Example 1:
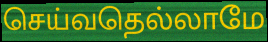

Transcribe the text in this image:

செய்வதெல்லாமே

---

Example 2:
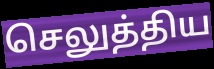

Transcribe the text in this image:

செலுத்திய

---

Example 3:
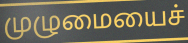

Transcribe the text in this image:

முழுமையைச்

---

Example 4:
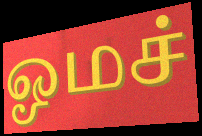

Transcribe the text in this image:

ஓமச்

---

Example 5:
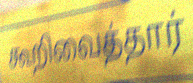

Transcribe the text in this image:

கூறிவைத்தார்